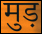
मुड़